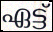
ഏട്ട്